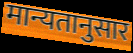
मान्यतानुसार